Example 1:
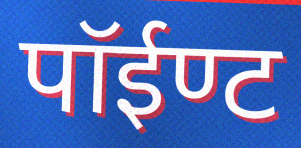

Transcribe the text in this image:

पॉईण्ट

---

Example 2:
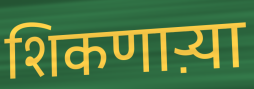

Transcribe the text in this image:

शिकणाऱ्‍या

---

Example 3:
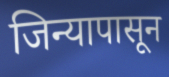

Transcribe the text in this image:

जिन्यापासून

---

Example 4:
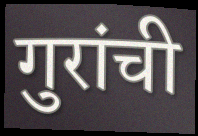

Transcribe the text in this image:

गुरांची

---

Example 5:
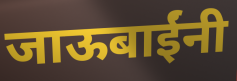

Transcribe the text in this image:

जाऊबाईंनी